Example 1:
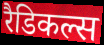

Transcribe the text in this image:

रैडिकल्स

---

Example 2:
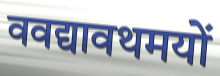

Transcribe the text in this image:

ववद्यावथमयों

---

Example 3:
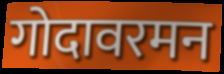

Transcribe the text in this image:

गोदावरमन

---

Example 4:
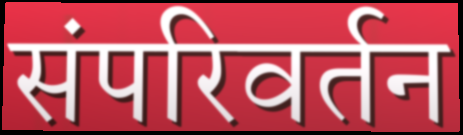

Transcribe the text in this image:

संपरिवर्तन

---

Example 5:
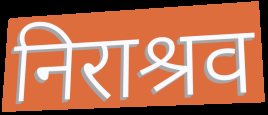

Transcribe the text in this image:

निराश्रव